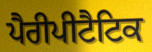
ਪੈਰੀਪੀਟੈਟਿਕ